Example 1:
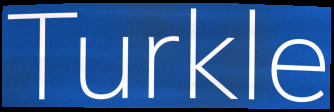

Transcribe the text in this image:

Turkle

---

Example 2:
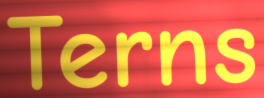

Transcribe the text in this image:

Terns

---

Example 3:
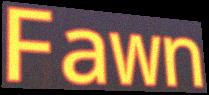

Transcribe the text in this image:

Fawn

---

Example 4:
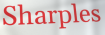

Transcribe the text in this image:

Sharples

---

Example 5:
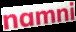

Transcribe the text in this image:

namni